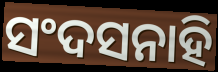
ସଂଦସନାହି